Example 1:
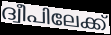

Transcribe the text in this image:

ദ്വീപിലേക്ക്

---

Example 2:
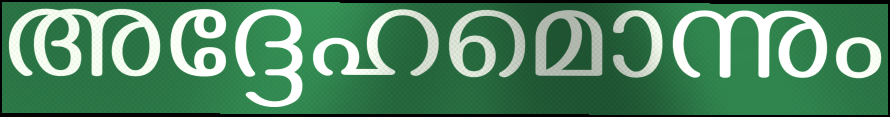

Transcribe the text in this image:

അദ്ദേഹമൊന്നും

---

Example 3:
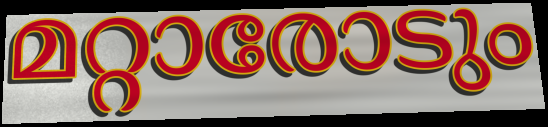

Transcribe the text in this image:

മറ്റാരോടും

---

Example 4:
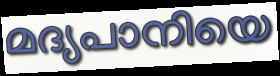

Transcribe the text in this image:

മദ്യപാനിയെ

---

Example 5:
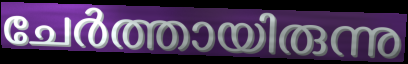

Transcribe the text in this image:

ചേർത്തായിരുന്നു